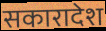
सकारादेश